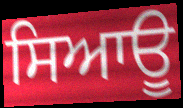
ਸਿਆਊ